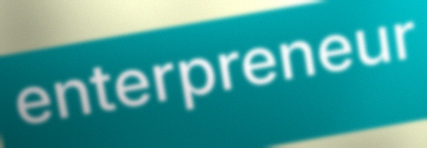
enterpreneur